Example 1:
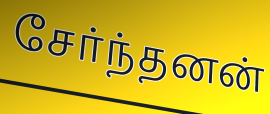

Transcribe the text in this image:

சேர்ந்தனன்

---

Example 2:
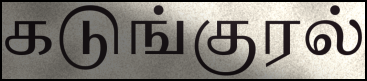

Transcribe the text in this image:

கடுங்குரல்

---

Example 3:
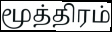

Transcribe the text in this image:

மூத்திரம்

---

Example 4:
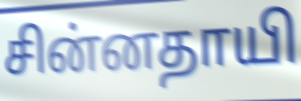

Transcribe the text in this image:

சின்னதாயி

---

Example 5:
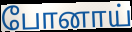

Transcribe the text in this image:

போனாய்